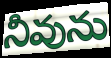
నీవును